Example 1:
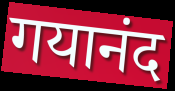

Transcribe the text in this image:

गयानंद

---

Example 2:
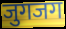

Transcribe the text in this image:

जुगजग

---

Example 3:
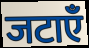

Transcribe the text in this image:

जटाएँ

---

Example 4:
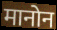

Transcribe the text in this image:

मानोन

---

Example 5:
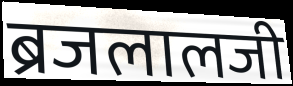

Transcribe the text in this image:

ब्रजलालजी